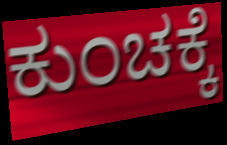
ಕುಂಚಕ್ಕೆ